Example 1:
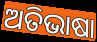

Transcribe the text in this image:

ଅତିଭାଷା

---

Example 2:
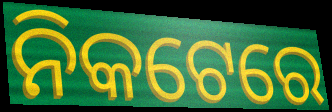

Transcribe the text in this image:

ନିକଟେରେ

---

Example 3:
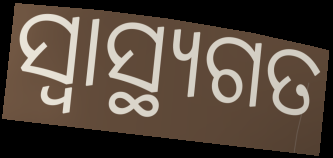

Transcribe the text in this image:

ସ୍ବାସ୍ଥ୍ୟଗତ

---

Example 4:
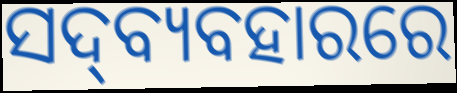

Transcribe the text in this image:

ସଦ୍‍ବ୍ୟବହାରରେ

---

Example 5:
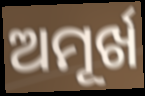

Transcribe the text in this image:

ଅମୂର୍ଖ